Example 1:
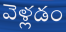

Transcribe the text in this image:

వెళ్లడం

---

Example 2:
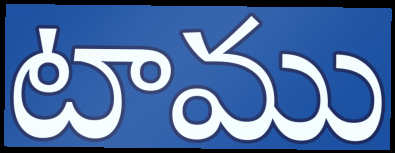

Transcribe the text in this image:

టాము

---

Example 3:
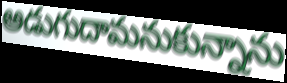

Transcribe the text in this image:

అడుగుదామనుకున్నాను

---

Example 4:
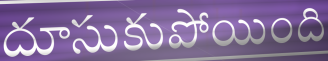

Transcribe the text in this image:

దూసుకుపోయింది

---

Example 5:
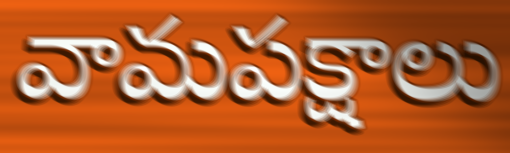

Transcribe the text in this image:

వామపక్షాలు